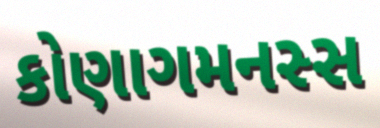
કોણાગમનસ્સ